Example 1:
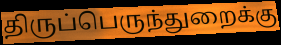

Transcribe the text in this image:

திருப்பெருந்துறைக்கு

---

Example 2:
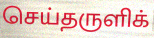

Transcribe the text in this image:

செய்தருளிக்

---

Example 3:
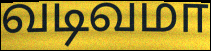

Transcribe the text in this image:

வடிவமா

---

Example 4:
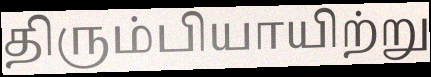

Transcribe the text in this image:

திரும்பியாயிற்று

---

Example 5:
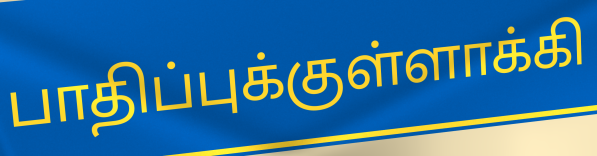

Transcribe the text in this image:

பாதிப்புக்குள்ளாக்கி